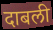
दाबली